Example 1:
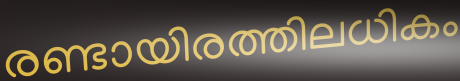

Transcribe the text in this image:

രണ്ടായിരത്തിലധികം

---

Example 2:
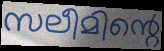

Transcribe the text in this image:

സലീമിന്റെ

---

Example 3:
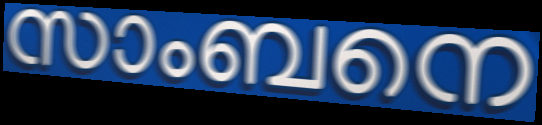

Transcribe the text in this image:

സാംബനെ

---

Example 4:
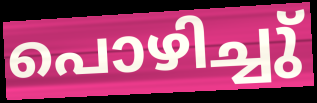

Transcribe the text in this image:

പൊഴിച്ചു്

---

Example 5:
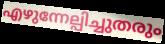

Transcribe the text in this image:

എഴുന്നേല്പിച്ചുതരും